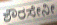
ಶೌರಸೇನೀ